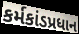
કર્મકાંડપ્રધાન